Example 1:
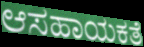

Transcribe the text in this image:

ಆಸಹಾಯಕತೆ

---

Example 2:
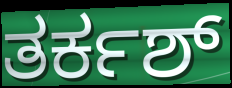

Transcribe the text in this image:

ತರ್ಕಶ್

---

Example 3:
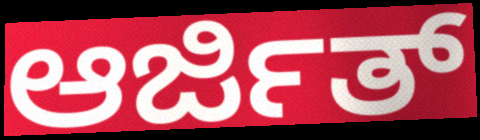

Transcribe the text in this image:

ಆರ್ಜಿತ್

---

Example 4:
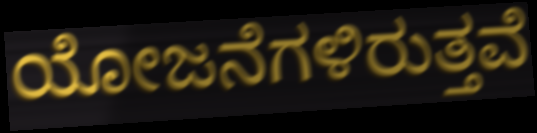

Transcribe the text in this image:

ಯೋಜನೆಗಳಿರುತ್ತವೆ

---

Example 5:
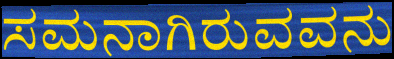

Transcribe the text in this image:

ಸಮನಾಗಿರುವವನು